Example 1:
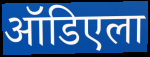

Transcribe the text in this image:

ऑडिएला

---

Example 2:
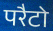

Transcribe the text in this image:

परैटो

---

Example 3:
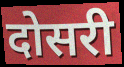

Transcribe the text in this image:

दोसरी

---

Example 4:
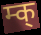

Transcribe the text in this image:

म्क्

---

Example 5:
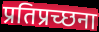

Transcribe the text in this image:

प्रतिप्रच्छना